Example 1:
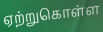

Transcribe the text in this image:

ஏற்றுகொள்ள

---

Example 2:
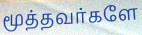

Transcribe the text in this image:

மூத்தவர்களே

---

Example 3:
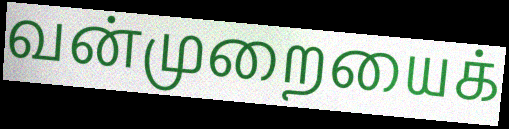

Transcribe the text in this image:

வன்முறையைக்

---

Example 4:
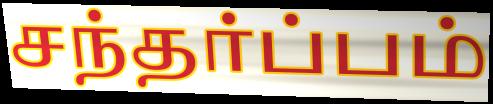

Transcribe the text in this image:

சந்தர்ப்பம்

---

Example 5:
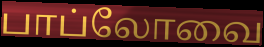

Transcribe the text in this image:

பாப்லோவை